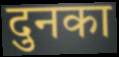
दुनका